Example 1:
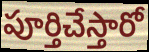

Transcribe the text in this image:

పూర్తిచేస్తారో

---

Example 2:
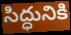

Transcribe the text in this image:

సిద్ధునికి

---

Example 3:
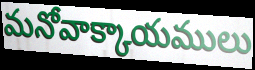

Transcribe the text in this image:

మనోవాక్కాయములు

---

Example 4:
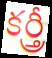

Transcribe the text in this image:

కర్త్రీ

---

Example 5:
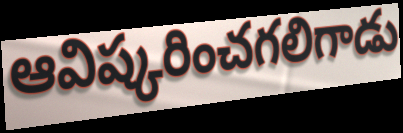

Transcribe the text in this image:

ఆవిష్కరించగలిగాడు